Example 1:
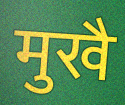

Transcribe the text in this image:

मुखै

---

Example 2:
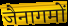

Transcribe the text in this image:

जैनागमों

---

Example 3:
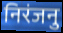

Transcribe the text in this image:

निरंजनु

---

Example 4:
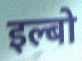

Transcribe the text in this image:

इल्बो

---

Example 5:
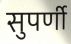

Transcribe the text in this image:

सुपर्णी